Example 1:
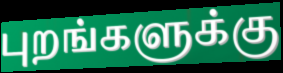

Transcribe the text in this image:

புறங்களுக்கு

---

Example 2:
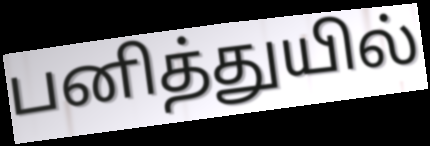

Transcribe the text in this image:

பனித்துயில்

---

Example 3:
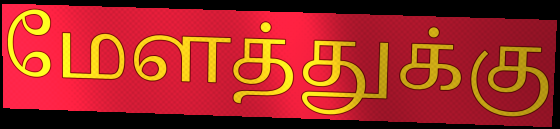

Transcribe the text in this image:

மேளத்துக்கு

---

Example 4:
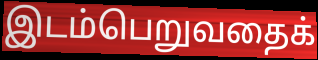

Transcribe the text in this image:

இடம்பெறுவதைக்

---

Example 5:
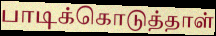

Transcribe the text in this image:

பாடிக்கொடுத்தாள்